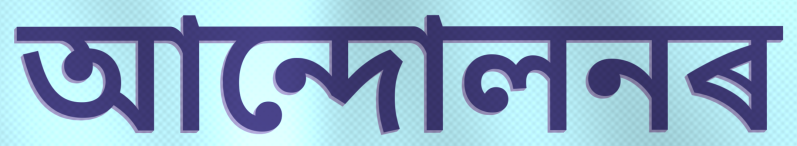
আন্দোলনৰ